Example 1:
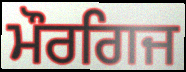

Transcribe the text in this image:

ਮੌਰਗਿਜ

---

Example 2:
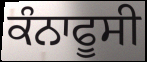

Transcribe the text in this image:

ਕੰਨਾਫੂਸੀ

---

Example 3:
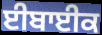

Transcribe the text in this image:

ਈਬਾਈਕ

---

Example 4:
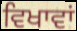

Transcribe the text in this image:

ਵਿਖਾਵਾਂ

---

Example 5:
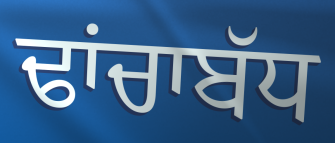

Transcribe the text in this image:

ਢਾਂਚਾਬੱਧ